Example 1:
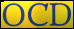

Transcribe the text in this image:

OCD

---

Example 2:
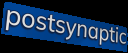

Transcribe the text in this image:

postsynaptic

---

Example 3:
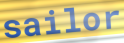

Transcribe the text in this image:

sailor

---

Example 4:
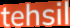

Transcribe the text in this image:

tehsil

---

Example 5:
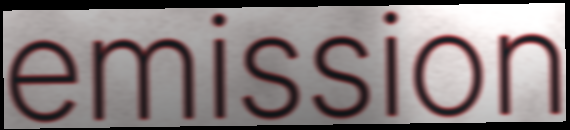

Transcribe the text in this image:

emission